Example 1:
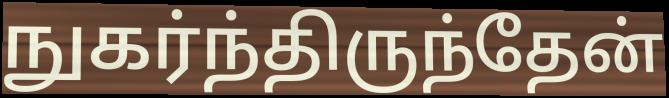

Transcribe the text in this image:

நுகர்ந்திருந்தேன்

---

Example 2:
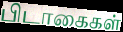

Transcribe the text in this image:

பிடாகைகள்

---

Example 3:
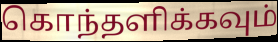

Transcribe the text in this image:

கொந்தளிக்கவும்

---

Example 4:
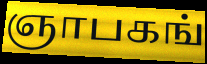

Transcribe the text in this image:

ஞாபகங்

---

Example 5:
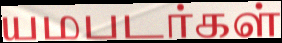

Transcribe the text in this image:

யமபடர்கள்